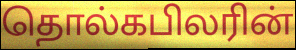
தொல்கபிலரின்